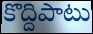
కొద్దిపాటు